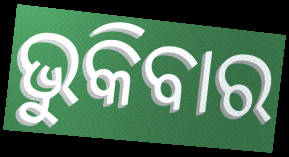
ଭୁକିବାର